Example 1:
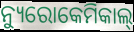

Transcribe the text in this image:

ନ୍ୟୁରୋକେମିକାଲ୍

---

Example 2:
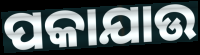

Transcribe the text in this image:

ପକାଯାଉ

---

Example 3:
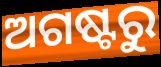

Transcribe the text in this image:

ଅଗଷ୍ଟରୁ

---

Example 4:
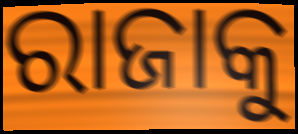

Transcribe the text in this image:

ରାଜାକୁ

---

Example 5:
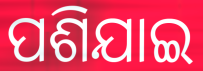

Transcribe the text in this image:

ପଶିଯାଇ